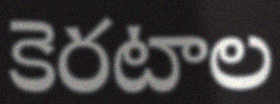
కెరటాల